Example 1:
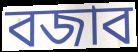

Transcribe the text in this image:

বজাব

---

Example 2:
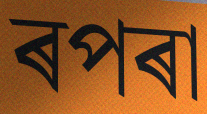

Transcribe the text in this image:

ৰপৰা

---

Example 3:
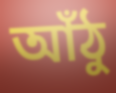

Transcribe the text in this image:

আঁঠু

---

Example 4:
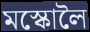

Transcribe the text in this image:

মস্কোলৈ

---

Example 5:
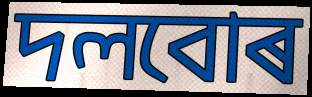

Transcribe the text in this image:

দলবোৰ